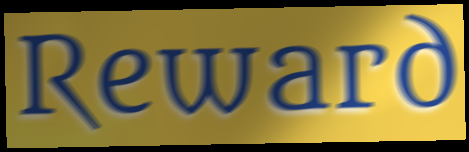
Reward